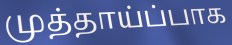
முத்தாய்ப்பாக